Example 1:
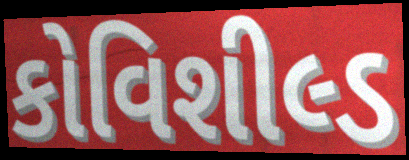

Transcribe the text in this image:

કોવિશીલ્ડ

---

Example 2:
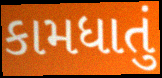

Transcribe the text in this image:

કામધાતું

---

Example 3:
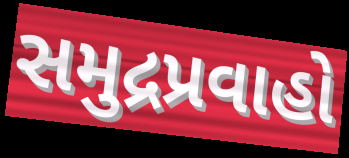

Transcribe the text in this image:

સમુદ્રપ્રવાહો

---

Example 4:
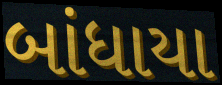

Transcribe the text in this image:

બાંધાયા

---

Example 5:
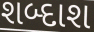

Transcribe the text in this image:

શબ્દાશ